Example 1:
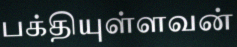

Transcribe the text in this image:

பக்தியுள்ளவன்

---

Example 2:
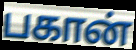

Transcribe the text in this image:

பகான்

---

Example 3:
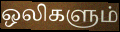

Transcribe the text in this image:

ஒலிகளும்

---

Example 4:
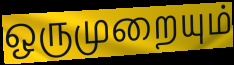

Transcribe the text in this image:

ஒருமுறையும்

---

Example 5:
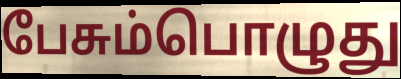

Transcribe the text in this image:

பேசும்பொழுது